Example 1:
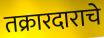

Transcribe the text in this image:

तक्रारदाराचे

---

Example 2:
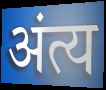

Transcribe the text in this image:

अंत्य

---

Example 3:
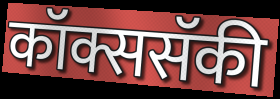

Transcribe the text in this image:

कॉक्ससॅकी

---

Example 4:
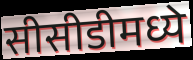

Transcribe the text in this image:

सीसीडीमध्ये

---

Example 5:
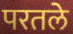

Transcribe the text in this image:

परतले